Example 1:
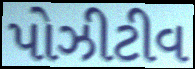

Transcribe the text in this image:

પોઝીટીવ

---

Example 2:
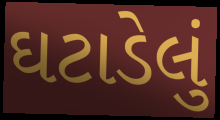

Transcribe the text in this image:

ઘટાડેલું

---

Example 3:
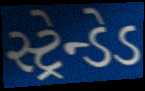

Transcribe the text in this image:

સ્ટ્રેન્ડેડ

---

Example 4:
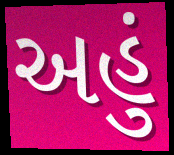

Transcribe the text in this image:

અહું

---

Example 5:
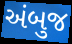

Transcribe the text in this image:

અંબુજ